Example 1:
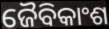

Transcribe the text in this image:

ଜୈବିକାଂଶ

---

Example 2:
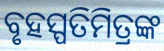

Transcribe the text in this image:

ବୃହସ୍ପତିମିତ୍ରଙ୍କ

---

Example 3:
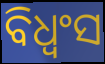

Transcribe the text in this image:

ବିଧ୍ଵଂସ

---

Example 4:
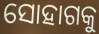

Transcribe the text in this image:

ସୋହାଗକୁ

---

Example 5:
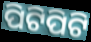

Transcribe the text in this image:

ପିଟିପିଟି